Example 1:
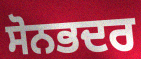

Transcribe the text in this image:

ਸੋਨਭਦਰ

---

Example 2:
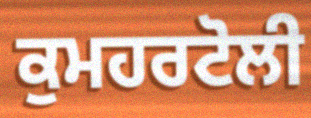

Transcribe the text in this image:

ਕੁਮਹਰਟੋਲੀ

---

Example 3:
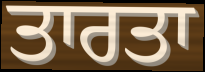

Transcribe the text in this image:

ਤਾਰਤਾ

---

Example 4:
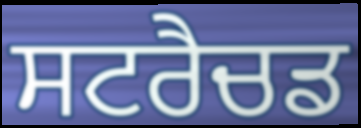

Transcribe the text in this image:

ਸਟਰੈਚਡ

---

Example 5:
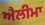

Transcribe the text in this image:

ਐਲੀਮਾ